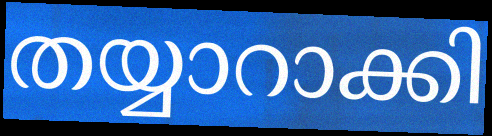
തയ്യാറാക്കി